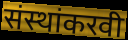
संस्थांकरवी